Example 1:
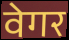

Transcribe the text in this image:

वेगर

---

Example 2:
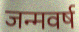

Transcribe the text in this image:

जन्मवर्ष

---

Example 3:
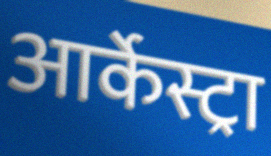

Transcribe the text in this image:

आर्केस्ट्रा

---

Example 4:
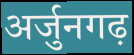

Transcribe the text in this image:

अर्जुनगढ़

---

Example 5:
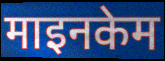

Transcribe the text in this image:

माइनकेम